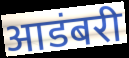
आडंबरी